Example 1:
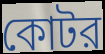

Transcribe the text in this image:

কোটর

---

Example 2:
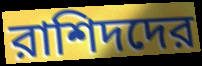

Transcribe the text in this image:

রাশিদদের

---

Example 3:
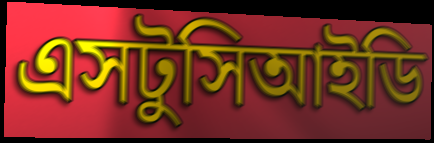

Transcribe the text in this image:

এসটুসিআইডি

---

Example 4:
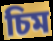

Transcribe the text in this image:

চিম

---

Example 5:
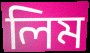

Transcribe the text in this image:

লিম